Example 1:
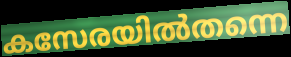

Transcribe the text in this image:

കസേരയിൽതന്നെ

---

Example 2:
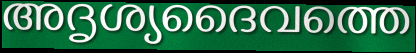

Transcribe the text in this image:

അദൃശ്യദൈവത്തെ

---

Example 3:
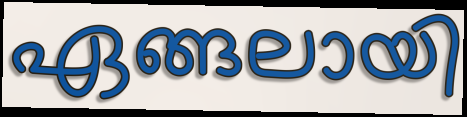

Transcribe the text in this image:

ഏങ്ങലായി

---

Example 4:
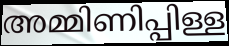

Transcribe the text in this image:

അമ്മിണിപ്പിള്ള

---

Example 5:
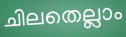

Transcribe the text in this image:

ചിലതെല്ലാം